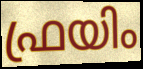
ഫ്രയിം